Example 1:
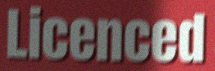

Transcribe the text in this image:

Licenced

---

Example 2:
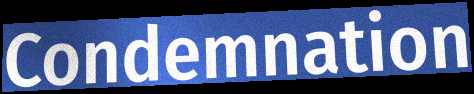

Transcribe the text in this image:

Condemnation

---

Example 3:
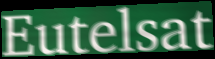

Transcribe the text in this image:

Eutelsat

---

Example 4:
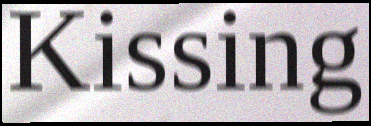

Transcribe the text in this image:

Kissing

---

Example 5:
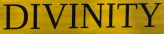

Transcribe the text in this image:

DIVINITY